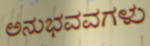
ಅನುಭವವಗಳು